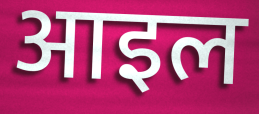
आइल